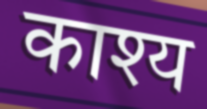
काश्य